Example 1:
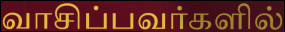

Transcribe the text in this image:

வாசிப்பவர்களில்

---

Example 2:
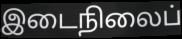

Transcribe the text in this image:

இடைநிலைப்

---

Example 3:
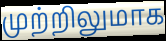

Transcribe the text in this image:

முற்றிலுமாக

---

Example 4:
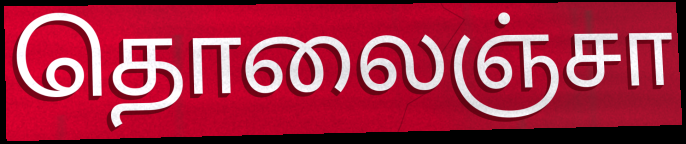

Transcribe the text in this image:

தொலைஞ்சா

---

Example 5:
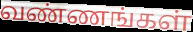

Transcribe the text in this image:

வண்ணங்கள்